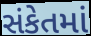
સંકેતમાં